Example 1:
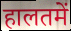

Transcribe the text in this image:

हालतमें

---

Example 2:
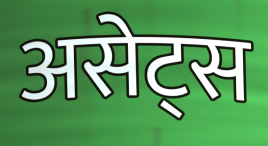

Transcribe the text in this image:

असेट्स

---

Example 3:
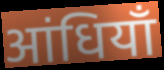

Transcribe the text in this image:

आंधियाँ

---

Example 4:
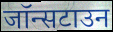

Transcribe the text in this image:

जॉन्सटाउन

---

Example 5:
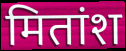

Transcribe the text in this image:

मितांश